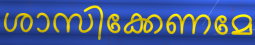
ശാസിക്കേണമേ